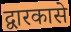
द्वारकासे